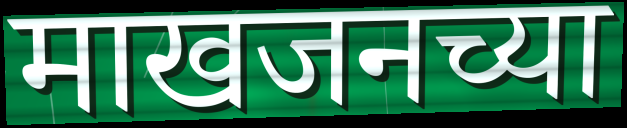
माखजनच्या